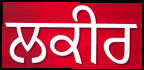
ਲਕੀਰ